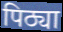
पिठ्या